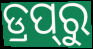
ଡ୍ରପ୍‍ରୁ